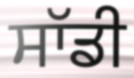
ਸਾੱਡੀ